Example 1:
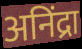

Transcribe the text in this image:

अनिंद्रा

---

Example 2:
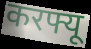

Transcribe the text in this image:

करफ्यू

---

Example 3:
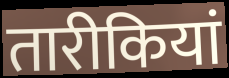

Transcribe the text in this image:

तारीकियां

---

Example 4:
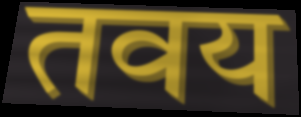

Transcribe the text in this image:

तवय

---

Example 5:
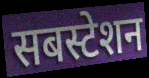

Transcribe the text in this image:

सबस्टेशन